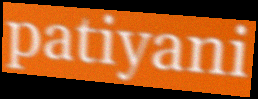
patiyani